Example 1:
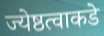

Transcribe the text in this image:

ज्येष्ठत्वाकडे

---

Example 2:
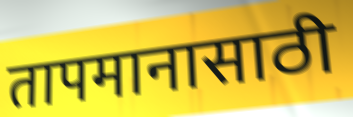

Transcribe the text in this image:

तापमानासाठी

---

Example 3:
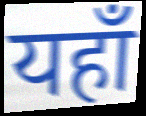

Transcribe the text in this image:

यहाँ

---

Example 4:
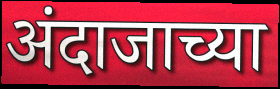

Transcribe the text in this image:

अंदाजाच्या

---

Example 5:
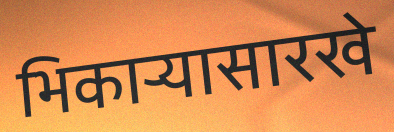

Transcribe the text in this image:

भिकार्‍यासारखे